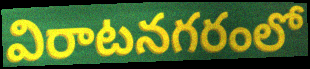
విరాటనగరంలో